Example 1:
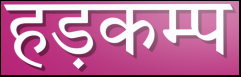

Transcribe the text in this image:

हड़कम्‍प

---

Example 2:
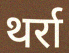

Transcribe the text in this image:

थर्रा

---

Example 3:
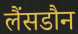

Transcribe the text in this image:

लैंसडौन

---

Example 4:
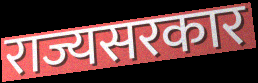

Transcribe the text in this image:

राज्यसरकार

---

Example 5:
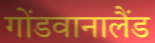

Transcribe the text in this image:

गोंडवानालैंड